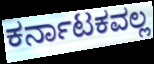
ಕರ್ನಾಟಕವಲ್ಲ